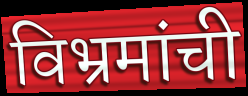
विभ्रमांची